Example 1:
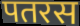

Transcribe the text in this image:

पतरस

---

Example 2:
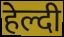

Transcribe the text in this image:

हेल्‍दी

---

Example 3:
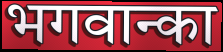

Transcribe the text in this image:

भगवान्का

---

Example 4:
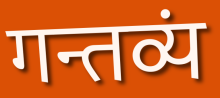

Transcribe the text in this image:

गन्तव्यं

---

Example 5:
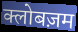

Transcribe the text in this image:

क्लोबज़म